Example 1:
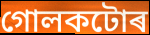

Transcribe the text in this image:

গোলকটোৰ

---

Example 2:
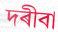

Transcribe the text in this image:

দৰীবা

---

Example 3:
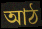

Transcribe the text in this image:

আঠ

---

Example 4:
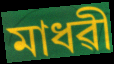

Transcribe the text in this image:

মাধৱী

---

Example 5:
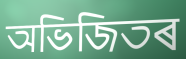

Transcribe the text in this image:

অভিজিতৰ